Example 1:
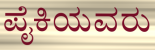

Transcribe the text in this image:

ಪೈಕಿಯವರು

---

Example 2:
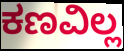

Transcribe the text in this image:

ಕಣವಿಲ್ಲ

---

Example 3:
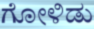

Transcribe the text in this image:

ಗೋಳಿಡು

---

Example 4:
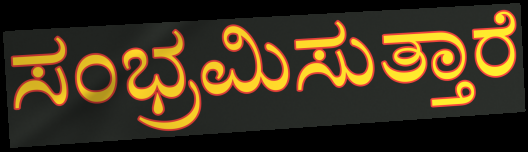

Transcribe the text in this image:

ಸಂಭ್ರಮಿಸುತ್ತಾರೆ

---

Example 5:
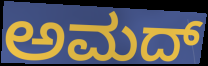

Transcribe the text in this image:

ಅಮದ್